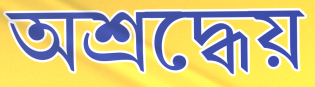
অশ্রদ্ধেয়